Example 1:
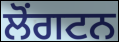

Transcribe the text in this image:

ਲੋਂਗਟਨ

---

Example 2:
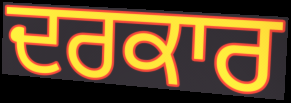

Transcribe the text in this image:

ਦਰਕਾਰ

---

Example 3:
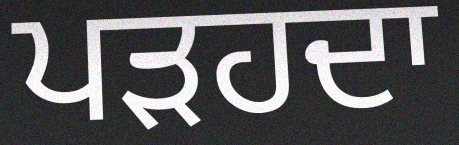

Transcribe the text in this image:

ਪੜਹਦਾ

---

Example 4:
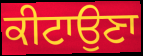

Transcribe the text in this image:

ਕੀਟਾਉਣਾ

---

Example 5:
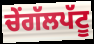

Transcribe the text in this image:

ਚੇਂਗੱਲਪੱਟੂ